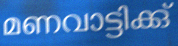
മണവാട്ടിക്കു്